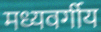
मध्यवर्गीय